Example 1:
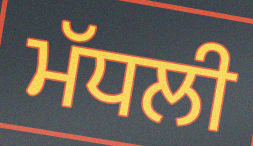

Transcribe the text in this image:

ਮੱਧਲੀ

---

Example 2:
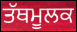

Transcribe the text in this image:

ਤੱਥਮੂਲਕ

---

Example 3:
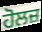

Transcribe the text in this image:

ਹੋਲਜ਼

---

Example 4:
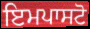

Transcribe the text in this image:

ਇਮਪਾਸਟੋ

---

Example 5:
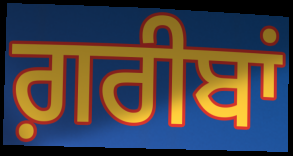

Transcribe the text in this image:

ਗ਼ਰੀਬਾਂ